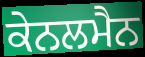
ਕੇਨਲਮੈਨ